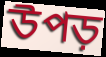
উপড়